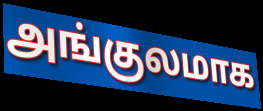
அங்குலமாக